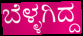
ಬೆಳ್ಳಗಿದ್ದ